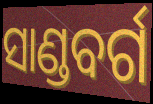
ସାଣ୍ଡବର୍ଗ